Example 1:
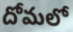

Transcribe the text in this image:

దోమలో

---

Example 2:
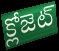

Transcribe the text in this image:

క్లోజెట్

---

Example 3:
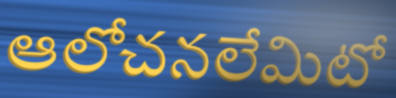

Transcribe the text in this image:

ఆలోచనలేమిటో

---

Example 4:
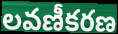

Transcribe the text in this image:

లవణీకరణ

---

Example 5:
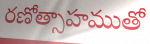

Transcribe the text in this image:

రణోత్సాహముతో